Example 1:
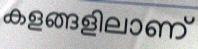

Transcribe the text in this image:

കളങ്ങളിലാണ്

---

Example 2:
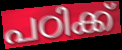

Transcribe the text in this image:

പഠിക്ക്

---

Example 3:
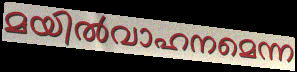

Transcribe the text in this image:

മയിൽവാഹനമെന്ന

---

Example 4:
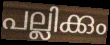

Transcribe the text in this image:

പല്ലിക്കും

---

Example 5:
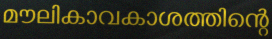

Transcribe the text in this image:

മൗലികാവകാശത്തിന്റെ